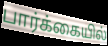
பார்க்கையில்